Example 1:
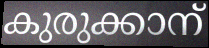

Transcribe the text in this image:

കുരുക്കാന്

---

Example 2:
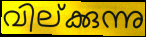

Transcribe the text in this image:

വില്ക്കുന്നു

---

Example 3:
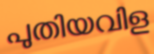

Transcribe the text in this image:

പുതിയവിള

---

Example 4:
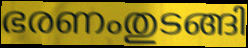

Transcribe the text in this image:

ഭരണംതുടങ്ങി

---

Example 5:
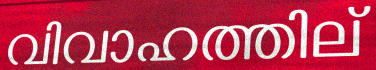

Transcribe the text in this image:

വിവാഹത്തില്